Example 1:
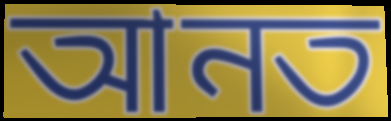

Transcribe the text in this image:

আনত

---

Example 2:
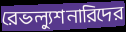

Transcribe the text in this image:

রেভল্যুশনারিদের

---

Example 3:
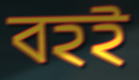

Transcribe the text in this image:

বহই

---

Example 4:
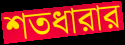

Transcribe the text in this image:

শতধারার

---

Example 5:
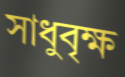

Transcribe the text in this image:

সাধুবৃক্ষ